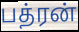
பத்ரன்